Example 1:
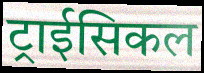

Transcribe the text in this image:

ट्राईसिकल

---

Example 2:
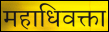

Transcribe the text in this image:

महाधिवक्ता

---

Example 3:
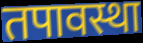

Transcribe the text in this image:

तपावस्था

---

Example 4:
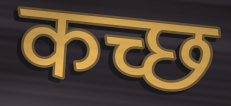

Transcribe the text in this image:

कच्छ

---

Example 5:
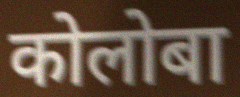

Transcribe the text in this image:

कोलोबा